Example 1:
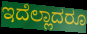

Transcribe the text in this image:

ಇದೆಲ್ಲಾದರೂ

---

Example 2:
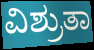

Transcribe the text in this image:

ವಿಶ್ರುತಾ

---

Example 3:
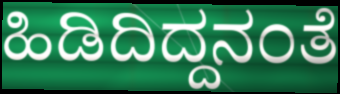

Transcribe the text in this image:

ಹಿಡಿದಿದ್ದನಂತೆ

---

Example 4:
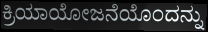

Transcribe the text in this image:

ಕ್ರಿಯಾಯೋಜನೆಯೊಂದನ್ನು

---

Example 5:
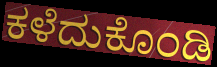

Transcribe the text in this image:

ಕಳೆದುಕೊಂಡಿ